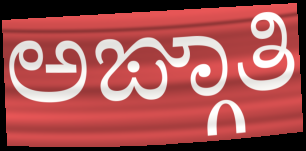
ಅಙ್ಗಾತಿ